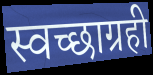
स्वच्छाग्रही